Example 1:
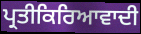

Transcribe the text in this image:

ਪ੍ਰਤੀਕਿਰਿਆਵਾਦੀ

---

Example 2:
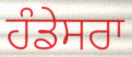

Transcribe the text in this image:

ਹੰਡੇਸਰਾ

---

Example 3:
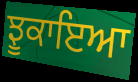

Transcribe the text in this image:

ਝੂਕਾਇਆ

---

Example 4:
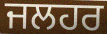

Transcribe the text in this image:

ਜਲਹਰ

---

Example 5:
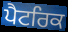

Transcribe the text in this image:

ਪੈਟਰਿਕ